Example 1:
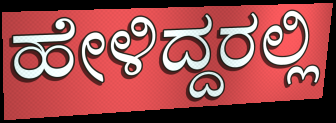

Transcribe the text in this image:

ಹೇಳಿದ್ದರಲ್ಲಿ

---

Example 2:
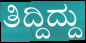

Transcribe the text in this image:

ತಿದ್ದಿದ್ದು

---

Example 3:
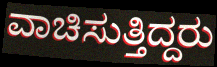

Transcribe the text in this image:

ವಾಚಿಸುತ್ತಿದ್ದರು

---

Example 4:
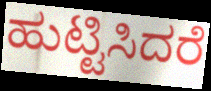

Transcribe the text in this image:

ಹುಟ್ಟಿಸಿದರೆ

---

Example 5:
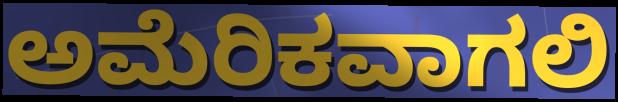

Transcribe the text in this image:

ಅಮೆರಿಕವಾಗಲಿ